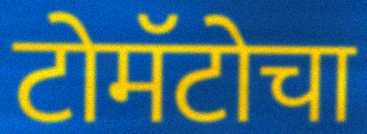
टोमॅटोचा